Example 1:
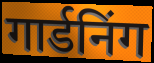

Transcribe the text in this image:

गार्डनिंग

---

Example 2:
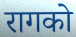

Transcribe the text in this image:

रागको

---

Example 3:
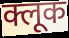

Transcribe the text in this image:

क्लूक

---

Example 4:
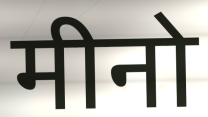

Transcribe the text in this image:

मीनो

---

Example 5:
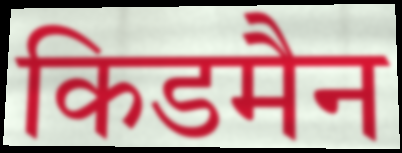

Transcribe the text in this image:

किडमैन